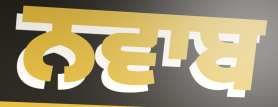
ਨਵਾਬ